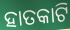
ହାତକାଟି